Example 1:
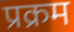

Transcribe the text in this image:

प्रक्रम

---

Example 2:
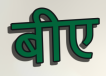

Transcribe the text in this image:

बीए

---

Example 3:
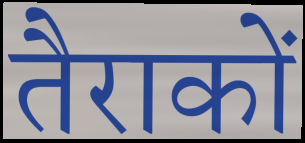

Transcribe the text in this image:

तैराकों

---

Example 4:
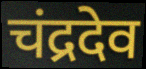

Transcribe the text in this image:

चंद्रदेव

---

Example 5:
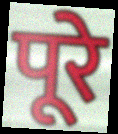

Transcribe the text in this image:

पूरे